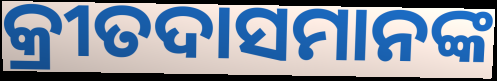
କ୍ରୀତଦାସମାନଙ୍କ